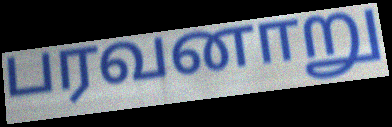
பரவனாறு